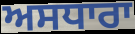
ਅਸਧਾਰਾ